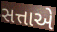
સત્તાએ